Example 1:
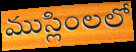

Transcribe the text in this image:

ముస్లింలలో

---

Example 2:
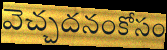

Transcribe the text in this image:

వెచ్చదనంకోసం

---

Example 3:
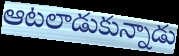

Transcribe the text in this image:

ఆటలాడుకున్నాడు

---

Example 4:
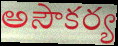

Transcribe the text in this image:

అసౌకర్య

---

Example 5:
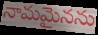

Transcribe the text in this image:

నామమైనను